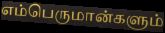
எம்பெருமான்களும்